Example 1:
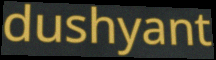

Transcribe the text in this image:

dushyant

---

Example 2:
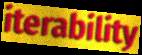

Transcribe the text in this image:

iterability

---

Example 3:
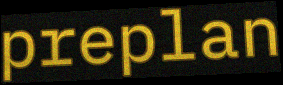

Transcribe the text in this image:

preplan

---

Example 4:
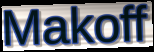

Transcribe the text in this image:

Makoff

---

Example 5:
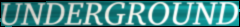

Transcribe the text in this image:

UNDERGROUND